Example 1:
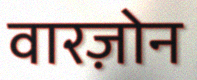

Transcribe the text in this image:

वारज़ोन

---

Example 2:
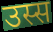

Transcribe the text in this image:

उस्स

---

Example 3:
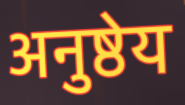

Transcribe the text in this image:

अनुष्ठेय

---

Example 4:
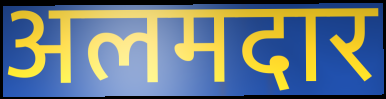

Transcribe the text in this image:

अलमदार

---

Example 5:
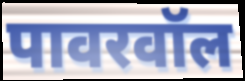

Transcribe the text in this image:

पावरवॉल